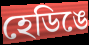
হেডিঙে